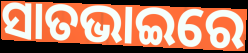
ସାତଭାଇରେ